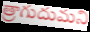
త్రాగుదుమని